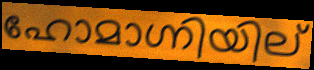
ഹോമാഗ്നിയില്